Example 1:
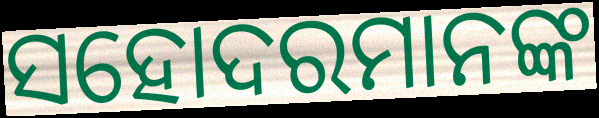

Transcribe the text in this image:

ସହୋଦରମାନଙ୍କ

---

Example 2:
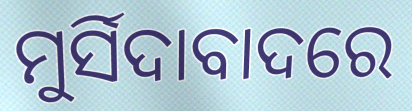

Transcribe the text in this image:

ମୁର୍ସିଦାବାଦରେ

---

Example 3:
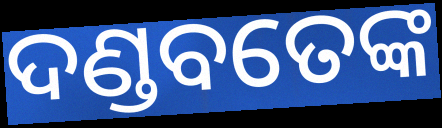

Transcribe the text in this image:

ଦଣ୍ଡବତେଙ୍କ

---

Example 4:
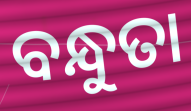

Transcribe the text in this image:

ବନ୍ଧୁତା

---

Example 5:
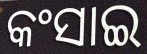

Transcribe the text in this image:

କଂସାଇ